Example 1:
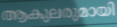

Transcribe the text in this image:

ആകുലരുമായി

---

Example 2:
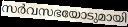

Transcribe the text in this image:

സർവസഭയോടുമായി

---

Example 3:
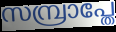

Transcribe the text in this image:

സമ്പ്രാപ്തേ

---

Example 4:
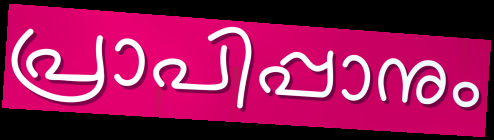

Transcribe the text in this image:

പ്രാപിപ്പാനും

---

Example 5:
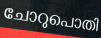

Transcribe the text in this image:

ചോറുപൊതി